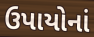
ઉપાયોનાં